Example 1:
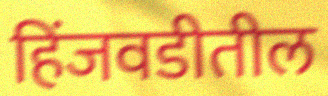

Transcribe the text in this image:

हिंजवडीतील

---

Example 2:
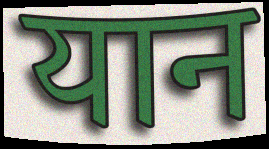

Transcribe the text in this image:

यान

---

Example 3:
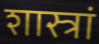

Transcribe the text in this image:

शास्त्रां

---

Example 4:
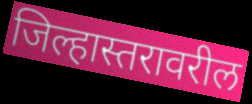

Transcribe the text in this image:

जिल्हास्तरावरील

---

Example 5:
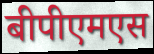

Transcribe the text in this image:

बीपीएमएस